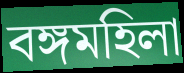
বঙ্গমহিলা